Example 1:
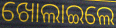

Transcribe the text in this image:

ଖୋଲାଇଲେ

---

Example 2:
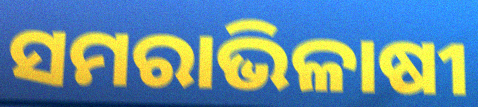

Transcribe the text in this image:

ସମରାଭିଳାଷୀ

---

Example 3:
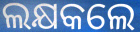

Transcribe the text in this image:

ଲକ୍ଷକଲେ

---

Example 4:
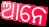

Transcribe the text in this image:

ଆନେ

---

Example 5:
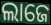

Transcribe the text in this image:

ଲାଜେ